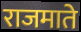
राजमाते